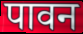
पावन